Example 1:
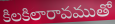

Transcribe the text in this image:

కిలకిలారావముతో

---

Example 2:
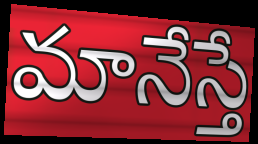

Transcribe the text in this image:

మానేస్తే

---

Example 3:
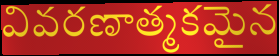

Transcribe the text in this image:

వివరణాత్మకమైన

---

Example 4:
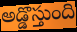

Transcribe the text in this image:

అడ్డొస్తుంది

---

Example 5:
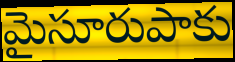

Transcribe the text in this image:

మైసూరుపాకు